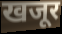
खजूर